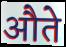
औते